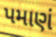
પમાણં